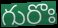
గురొః